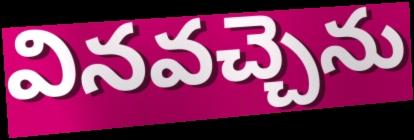
వినవచ్చెను